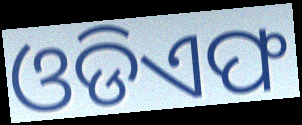
ଓଡିଏଫ